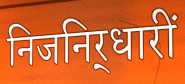
निजनिर्धारीं